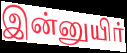
இன்னுயிர்